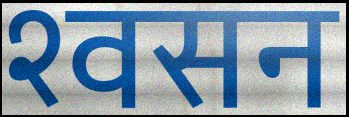
श्वसन